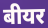
बीयर